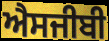
ਐਸਜੀਬੀ